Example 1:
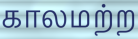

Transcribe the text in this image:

காலமற்ற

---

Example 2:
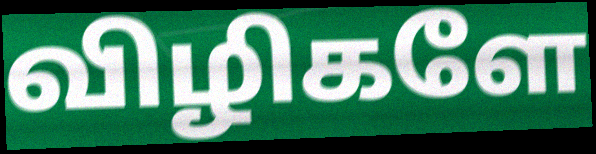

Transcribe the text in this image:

விழிகளே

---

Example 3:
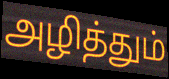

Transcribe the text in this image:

அழித்தும்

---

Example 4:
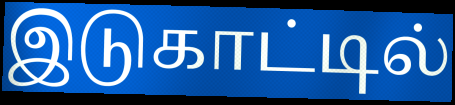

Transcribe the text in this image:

இடுகாட்டில்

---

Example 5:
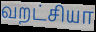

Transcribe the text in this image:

வறட்சியா